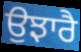
ਉਝਾਰੈ